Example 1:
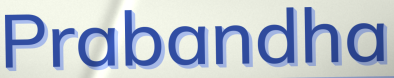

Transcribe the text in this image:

Prabandha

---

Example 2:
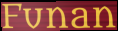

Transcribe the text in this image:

Funan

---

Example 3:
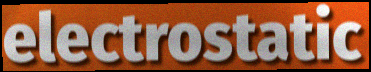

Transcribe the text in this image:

electrostatic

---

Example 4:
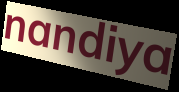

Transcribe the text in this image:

nandiya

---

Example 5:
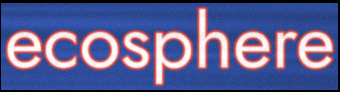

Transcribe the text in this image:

ecosphere